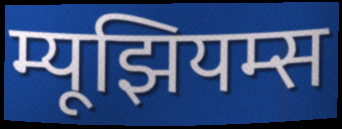
म्यूझियम्स